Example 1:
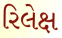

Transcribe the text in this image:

રિલેક્ષ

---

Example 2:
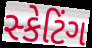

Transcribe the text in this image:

સ્કેટિંગ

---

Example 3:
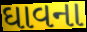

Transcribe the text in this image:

ઘાવના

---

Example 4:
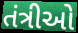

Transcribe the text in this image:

તંત્રીઓ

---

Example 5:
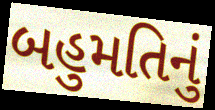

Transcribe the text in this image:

બહુમતિનું